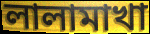
লালামাখা